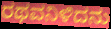
ರಥವನಿಳಿದನು